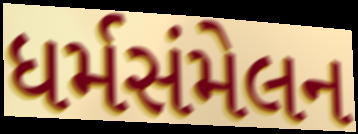
ધર્મસંમેલન